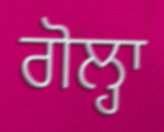
ਗੋਲ੍ਹਾ